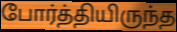
போர்த்தியிருந்த